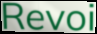
Revoi